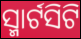
ସ୍ମାର୍ଟସିଟି